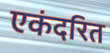
एकंदरित